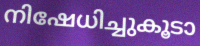
നിഷേധിച്ചുകൂടാ